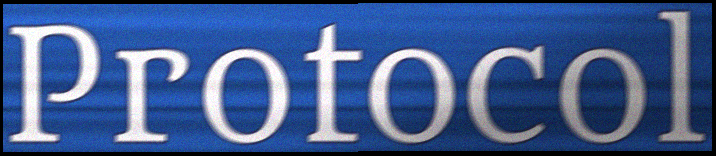
Protocol